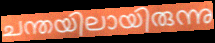
ചന്തയിലായിരുന്നു